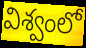
విశ్వంలో